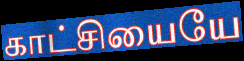
காட்சியையே